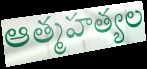
ఆత్మహత్యల